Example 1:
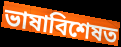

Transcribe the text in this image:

ভাষাবিশেষত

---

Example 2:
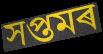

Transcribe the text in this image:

সপ্তমৰ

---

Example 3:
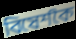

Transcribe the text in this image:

বিষেশকৈ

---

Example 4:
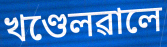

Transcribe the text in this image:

খণ্ডেলৱালে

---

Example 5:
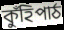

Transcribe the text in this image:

কুঁহিপাঠ